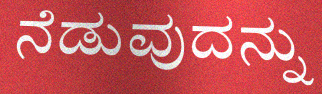
ನೆಡುವುದನ್ನು